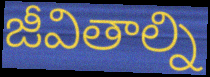
జీవితాల్ని